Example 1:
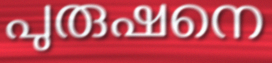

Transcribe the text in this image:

പുരുഷനെ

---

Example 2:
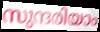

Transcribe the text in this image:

സുന്ദരിയാം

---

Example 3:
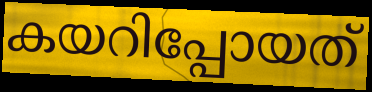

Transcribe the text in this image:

കയറിപ്പോയത്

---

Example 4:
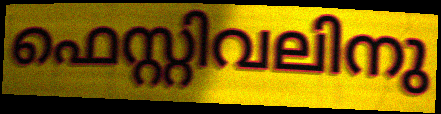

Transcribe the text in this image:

ഫെസ്റ്റിവലിനു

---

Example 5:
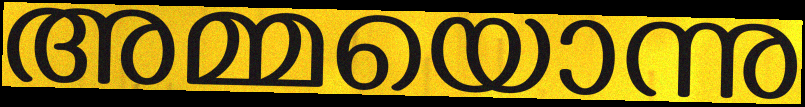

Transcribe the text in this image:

അമ്മയൊന്നു